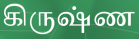
கிருஷ்ண